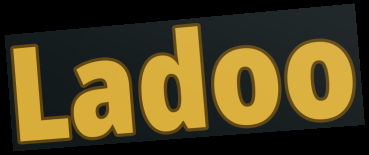
Ladoo